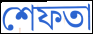
শেফতা